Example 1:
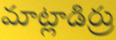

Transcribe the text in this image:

మాట్లాడిర్రు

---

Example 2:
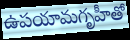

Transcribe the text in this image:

ఉపయామగృహీతో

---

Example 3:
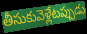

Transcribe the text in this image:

తీసుకువెళ్లేటప్పుడు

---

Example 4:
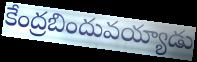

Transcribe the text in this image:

కేంద్రబిందువయ్యాడు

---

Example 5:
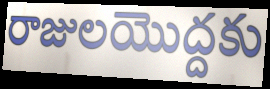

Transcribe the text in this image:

రాజులయొద్దకు